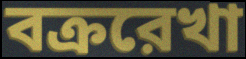
বক্ররেখা